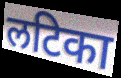
लटिका